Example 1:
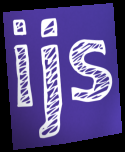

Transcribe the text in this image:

ijs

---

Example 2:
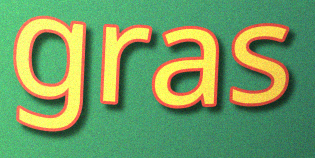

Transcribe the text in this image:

gras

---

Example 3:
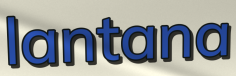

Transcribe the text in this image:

lantana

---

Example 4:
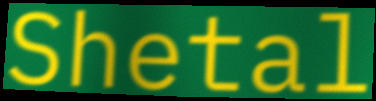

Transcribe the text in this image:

Shetal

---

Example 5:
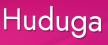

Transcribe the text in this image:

Huduga